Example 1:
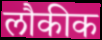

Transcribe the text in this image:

लौकीक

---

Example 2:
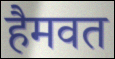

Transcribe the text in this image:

हैमवत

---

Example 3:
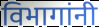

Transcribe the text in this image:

विभागांनी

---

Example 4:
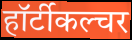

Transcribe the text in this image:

हॉर्टीकल्चर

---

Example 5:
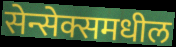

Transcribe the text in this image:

सेन्सेक्समधील